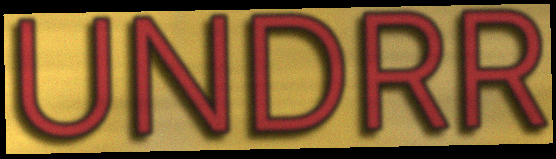
UNDRR